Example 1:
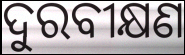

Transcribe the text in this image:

ଦୁରବୀକ୍ଷଣ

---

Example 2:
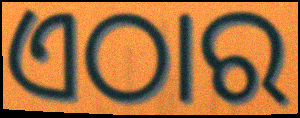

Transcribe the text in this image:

ଏଠାର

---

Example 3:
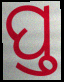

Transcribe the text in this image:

ପ୍ତ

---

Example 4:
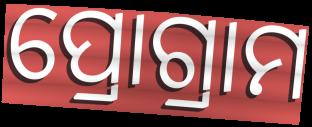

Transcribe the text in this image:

ପ୍ରୋଗ୍ରାମ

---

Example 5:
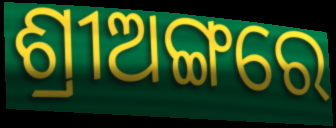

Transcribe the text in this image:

ଶ୍ରୀଅଙ୍ଗରେ